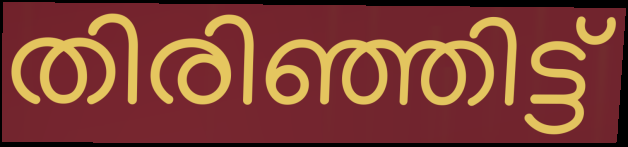
തിരിഞ്ഞിട്ട്